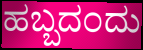
ಹಬ್ಬದಂದು